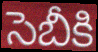
సెబీకి